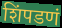
शिंपडणं